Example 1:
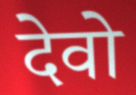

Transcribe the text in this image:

देवो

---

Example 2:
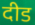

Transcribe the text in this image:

दीड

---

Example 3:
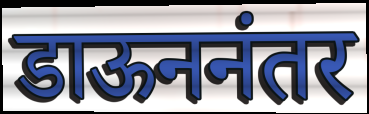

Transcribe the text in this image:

डाऊननंतर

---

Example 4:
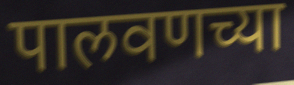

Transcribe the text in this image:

पालवणच्या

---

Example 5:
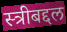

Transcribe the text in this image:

स्त्रीबद्दल